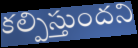
కల్పిస్తుందని